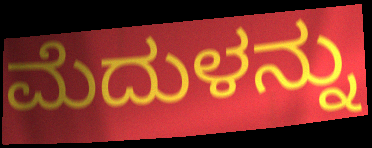
ಮೆದುಳನ್ನು